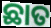
ଛାତ